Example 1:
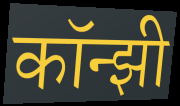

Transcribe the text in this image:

कॉन्झी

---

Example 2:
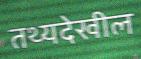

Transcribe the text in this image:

तथ्यदेखील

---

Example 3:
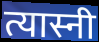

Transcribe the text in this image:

त्यास्नी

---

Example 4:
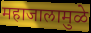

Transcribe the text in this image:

महाजालामुळे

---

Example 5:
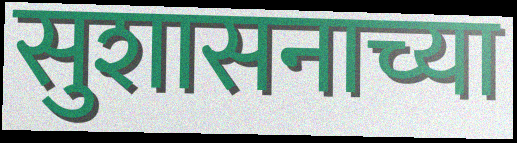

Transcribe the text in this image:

सुशासनाच्या